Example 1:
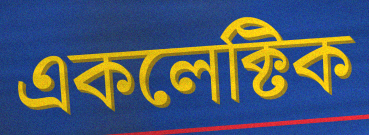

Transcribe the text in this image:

একলেক্টিক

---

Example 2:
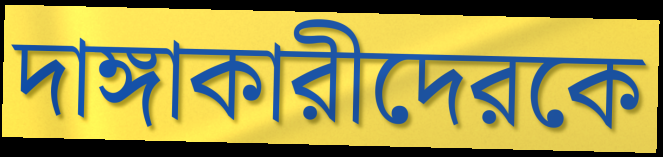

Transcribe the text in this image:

দাঙ্গাকারীদেরকে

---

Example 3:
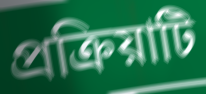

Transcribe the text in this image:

প্রক্রিয়াটি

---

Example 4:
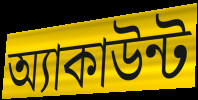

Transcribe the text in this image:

অ্যাকাউন্ট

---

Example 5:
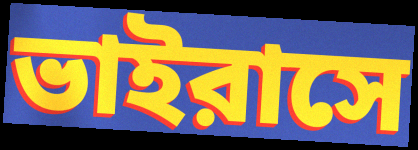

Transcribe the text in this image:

ভাইরাসে